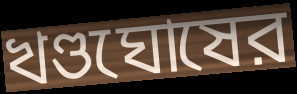
খণ্ডঘোষের